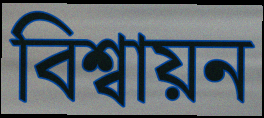
বিশ্বায়ন